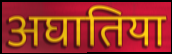
अघातिया